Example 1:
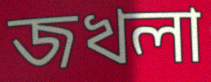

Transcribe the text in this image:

জখলা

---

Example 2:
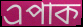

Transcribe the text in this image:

এপাক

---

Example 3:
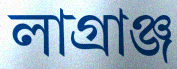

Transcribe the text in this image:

লাগ্ৰাঞ্জ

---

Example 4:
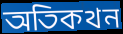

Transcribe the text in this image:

অতিকথন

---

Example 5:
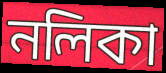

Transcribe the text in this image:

নলিকা